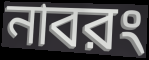
নাবরং